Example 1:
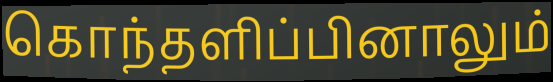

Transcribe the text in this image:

கொந்தளிப்பினாலும்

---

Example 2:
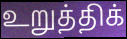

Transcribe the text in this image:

உறுத்திக்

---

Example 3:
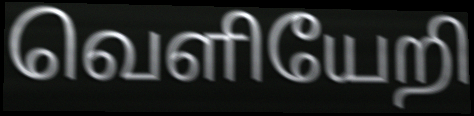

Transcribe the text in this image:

வெளியேறி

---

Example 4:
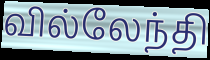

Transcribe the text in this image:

வில்லேந்தி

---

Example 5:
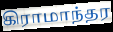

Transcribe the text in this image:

கிராமாந்தர